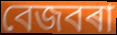
বেজবৰা